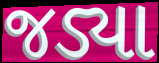
જડ્યા